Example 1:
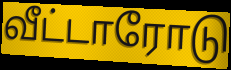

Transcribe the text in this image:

வீட்டாரோடு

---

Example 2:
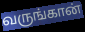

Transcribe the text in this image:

வருங்கான்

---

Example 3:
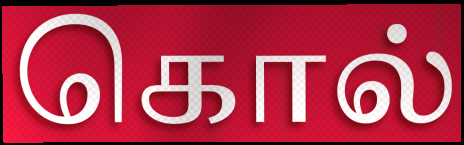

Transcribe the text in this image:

கொல்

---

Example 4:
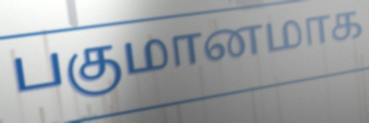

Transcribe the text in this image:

பகுமானமாக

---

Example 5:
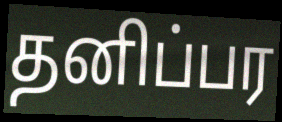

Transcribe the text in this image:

தனிப்பர